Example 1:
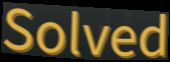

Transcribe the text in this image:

Solved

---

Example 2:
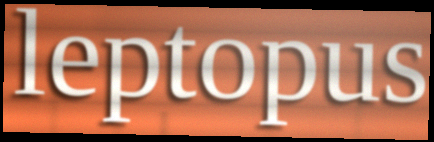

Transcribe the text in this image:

leptopus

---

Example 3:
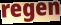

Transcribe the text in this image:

regen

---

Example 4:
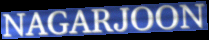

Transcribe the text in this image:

NAGARJOON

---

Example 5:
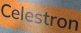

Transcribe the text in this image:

Celestron